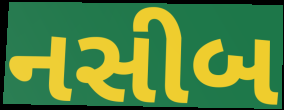
નસીબ